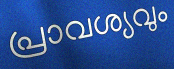
പ്രാവശ്യവും